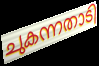
ചുകന്നതാടി